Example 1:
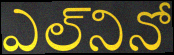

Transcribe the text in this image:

ఎల్‌నినో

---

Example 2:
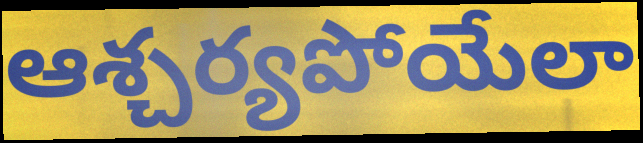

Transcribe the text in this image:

ఆశ్చర్యపోయేలా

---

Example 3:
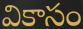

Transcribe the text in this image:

వికాసం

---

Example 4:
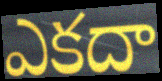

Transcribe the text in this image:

ఎకదా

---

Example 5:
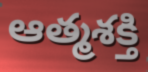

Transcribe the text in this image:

ఆత్మశక్తి